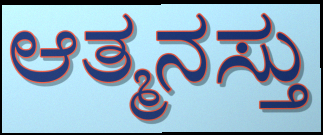
ಆತ್ಮನಸ್ತು